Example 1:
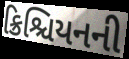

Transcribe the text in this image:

ક્રિશ્ચિયનની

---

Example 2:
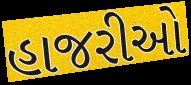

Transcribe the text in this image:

હાજરીઓ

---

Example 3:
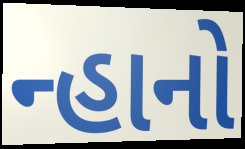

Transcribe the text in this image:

ન્હાનો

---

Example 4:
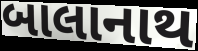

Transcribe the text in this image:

બાલાનાથ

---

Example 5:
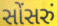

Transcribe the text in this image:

સોંસરું